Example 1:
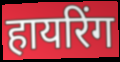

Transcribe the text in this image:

हायरिंग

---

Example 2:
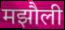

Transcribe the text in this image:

मझौली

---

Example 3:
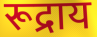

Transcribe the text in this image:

रूद्राय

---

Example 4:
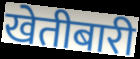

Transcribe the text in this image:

खेतीबारी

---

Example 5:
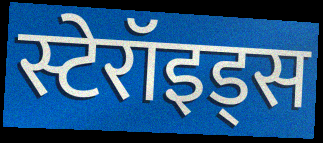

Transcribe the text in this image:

स्टेरॉइड्स